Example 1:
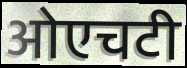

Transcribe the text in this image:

ओएचटी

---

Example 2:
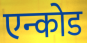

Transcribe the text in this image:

एन्कोड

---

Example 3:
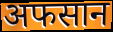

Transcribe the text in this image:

अफसान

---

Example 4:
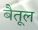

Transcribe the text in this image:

बैतूल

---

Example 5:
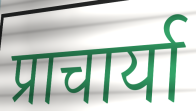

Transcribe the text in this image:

प्राचार्या